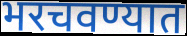
भरचवण्यात